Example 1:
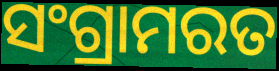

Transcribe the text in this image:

ସଂଗ୍ରାମରତ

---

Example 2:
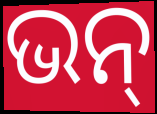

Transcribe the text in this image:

ଭନ୍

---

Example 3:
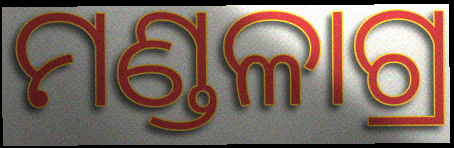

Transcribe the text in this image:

ମଣ୍ଡଳାଗ୍ର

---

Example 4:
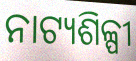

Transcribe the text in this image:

ନାଟ୍ୟଶିଳ୍ପୀ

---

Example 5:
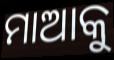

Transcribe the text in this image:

ମାଆକୁ